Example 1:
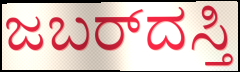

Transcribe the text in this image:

ಜಬರ್‌ದಸ್ತಿ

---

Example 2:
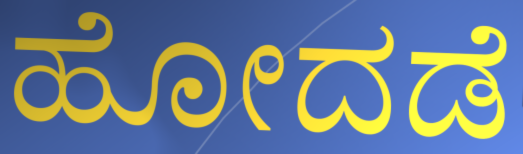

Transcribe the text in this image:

ಹೋದಡೆ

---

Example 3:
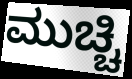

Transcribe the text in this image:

ಮುಚ್ಚಿ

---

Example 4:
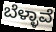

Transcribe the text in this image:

ಬೆಳ್ಳಾವೆ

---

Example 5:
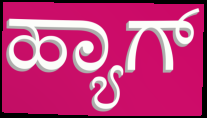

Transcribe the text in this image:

ಹ್ಯಾಗ್